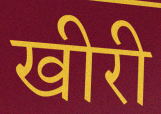
खीरी